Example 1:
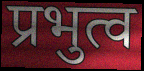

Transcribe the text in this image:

प्रभुत्व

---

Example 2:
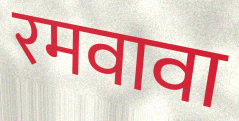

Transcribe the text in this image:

रमवावा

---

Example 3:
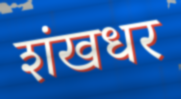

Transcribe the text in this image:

शंखधर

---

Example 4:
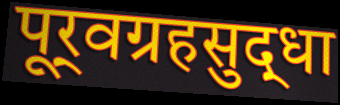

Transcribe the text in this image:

पूर्वग्रहसुद्धा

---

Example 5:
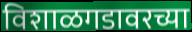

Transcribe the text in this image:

विशाळगडावरच्या